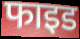
फाइड